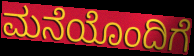
ಮನೆಯೊಂದಿಗೆ